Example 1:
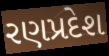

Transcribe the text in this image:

રણપ્રદેશ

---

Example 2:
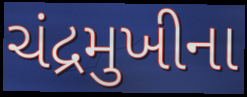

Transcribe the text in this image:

ચંદ્રમુખીના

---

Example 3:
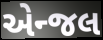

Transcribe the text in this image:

એન્જલ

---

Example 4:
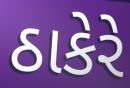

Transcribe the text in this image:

ઠાકેરે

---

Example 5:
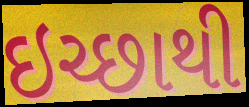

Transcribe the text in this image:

ઇચ્છાથી